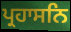
ਪ੍ਰਹਾਸਨਿ